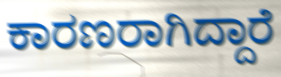
ಕಾರಣರಾಗಿದ್ದಾರೆ